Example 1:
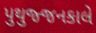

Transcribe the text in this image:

પુથુજ્જનકાલે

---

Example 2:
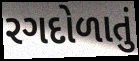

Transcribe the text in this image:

રગદોળાતું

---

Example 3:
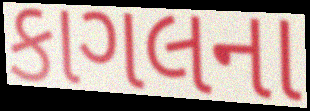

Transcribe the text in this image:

કાગલના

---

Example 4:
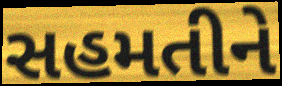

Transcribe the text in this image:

સહમતીને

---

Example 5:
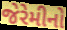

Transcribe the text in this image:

જેરેમીનો